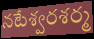
నటేశ్వరశర్మ